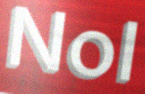
Nol